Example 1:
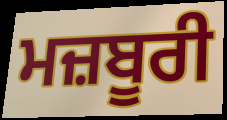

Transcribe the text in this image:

ਮਜ਼ਬੂਰੀ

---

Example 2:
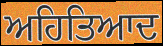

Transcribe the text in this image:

ਅਹਿਤਿਆਦ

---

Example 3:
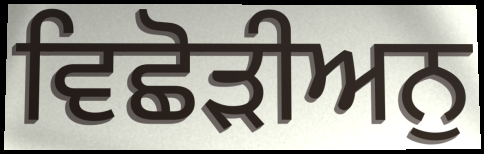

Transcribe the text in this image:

ਵਿਛੋੜੀਅਨੁ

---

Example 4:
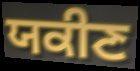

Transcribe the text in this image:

ਯਕੀਣ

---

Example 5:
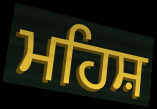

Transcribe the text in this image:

ਮਹਿਸ਼